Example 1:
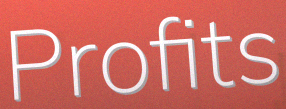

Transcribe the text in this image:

Profits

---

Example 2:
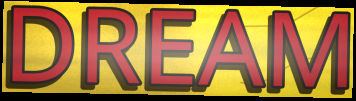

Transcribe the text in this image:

DREAM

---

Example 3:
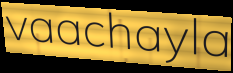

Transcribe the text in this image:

vaachayla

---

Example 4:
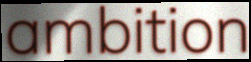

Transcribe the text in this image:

ambition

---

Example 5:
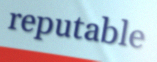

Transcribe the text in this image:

reputable